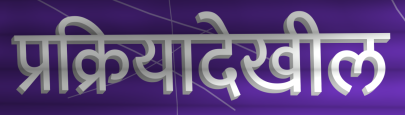
प्रक्रियादेखील